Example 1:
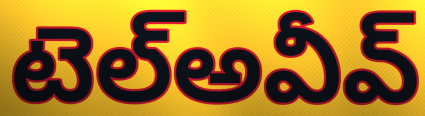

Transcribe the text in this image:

టెల్అవీవ్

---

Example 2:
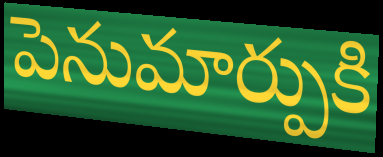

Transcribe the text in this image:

పెనుమార్పుకి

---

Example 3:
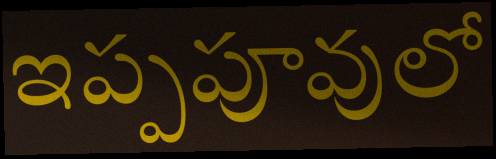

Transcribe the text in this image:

ఇప్పపూవులో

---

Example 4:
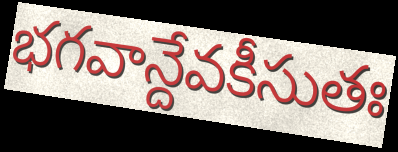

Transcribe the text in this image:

భగవాన్దేవకీసుతః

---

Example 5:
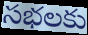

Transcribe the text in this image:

సభలకు